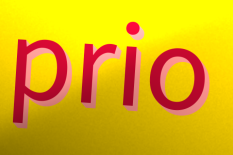
prio